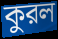
কুরল